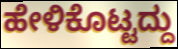
ಹೇಳಿಕೊಟ್ಟದ್ದು